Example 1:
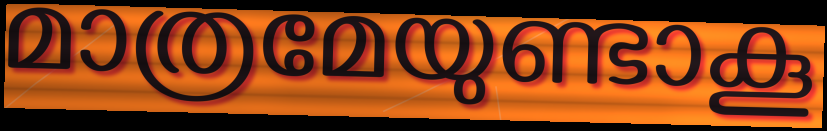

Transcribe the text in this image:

മാത്രമേയുണ്ടാകൂ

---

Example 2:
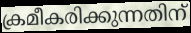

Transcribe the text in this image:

ക്രമീകരിക്കുന്നതിന്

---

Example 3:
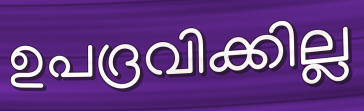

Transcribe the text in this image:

ഉപദ്രവിക്കില്ല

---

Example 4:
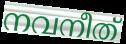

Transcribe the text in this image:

നവനീത്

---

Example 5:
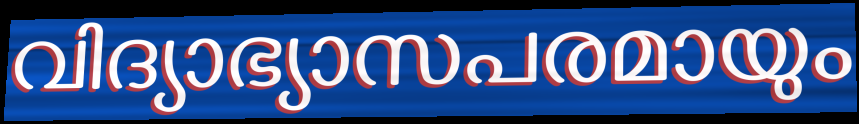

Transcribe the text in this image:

വിദ്യാഭ്യാസപരമായും